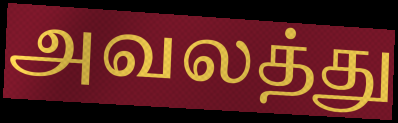
அவலத்து